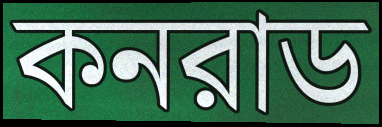
কনরাড